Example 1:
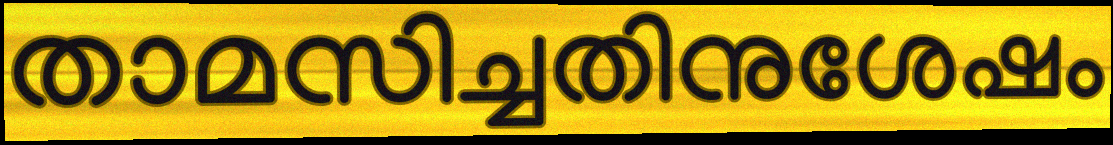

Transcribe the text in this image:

താമസിച്ചതിനുശേഷം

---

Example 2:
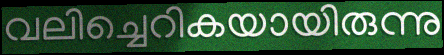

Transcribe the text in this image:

വലിച്ചെറികയായിരുന്നു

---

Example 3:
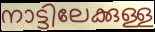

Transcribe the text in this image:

നാട്ടിലേക്കുള്ള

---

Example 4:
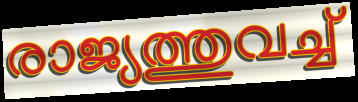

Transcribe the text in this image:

രാജ്യത്തുവച്ച്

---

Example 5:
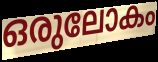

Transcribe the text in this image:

ഒരുലോകം